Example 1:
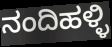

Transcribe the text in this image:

ನಂದಿಹಳ್ಳಿ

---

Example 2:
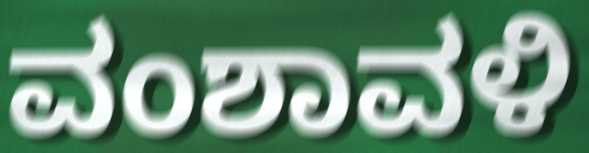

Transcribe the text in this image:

ವಂಶಾವಳಿ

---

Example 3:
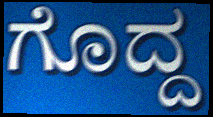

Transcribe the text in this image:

ಗೊದ್ದ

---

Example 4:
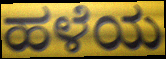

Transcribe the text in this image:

ಹಳೆಯ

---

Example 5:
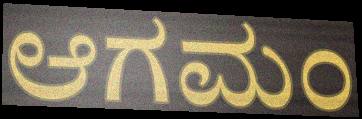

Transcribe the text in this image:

ಆಗಮಂ